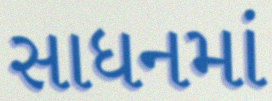
સાધનમાં